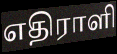
எதிராளி